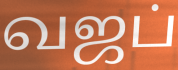
வஜப்